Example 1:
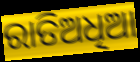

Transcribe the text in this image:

ରାତିଅଧିଆ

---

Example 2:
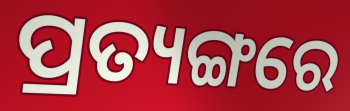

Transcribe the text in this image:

ପ୍ରତ୍ୟଙ୍ଗରେ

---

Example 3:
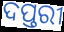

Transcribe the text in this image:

ଦପ୍ତରୀ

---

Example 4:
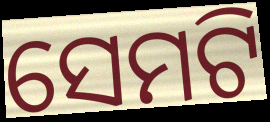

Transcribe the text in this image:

ସେମଟି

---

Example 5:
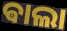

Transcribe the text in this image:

ଵାଲା